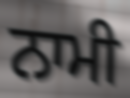
ਨਾਮੀ